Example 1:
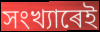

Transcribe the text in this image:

সংখ্যাৰেই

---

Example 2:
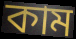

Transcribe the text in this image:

কাম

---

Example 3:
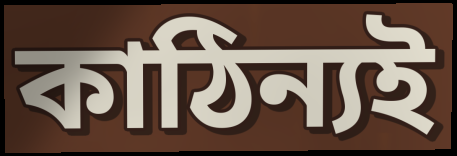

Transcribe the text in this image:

কাঠিন্যই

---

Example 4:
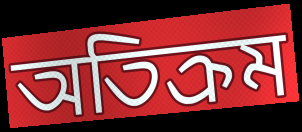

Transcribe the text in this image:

অতিক্ৰম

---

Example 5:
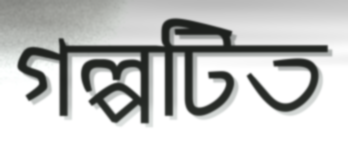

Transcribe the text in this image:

গল্পটিত